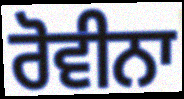
ਰੋਵੀਨਾ